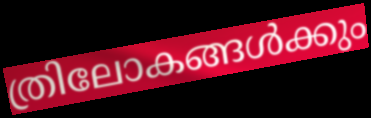
ത്രിലോകങ്ങൾക്കും